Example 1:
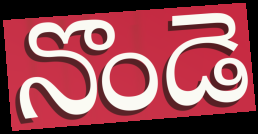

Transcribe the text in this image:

నొండె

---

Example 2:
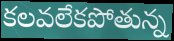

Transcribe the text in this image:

కలవలేకపోతున్న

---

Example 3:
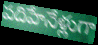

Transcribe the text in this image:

పదిహేనేళ్లుగా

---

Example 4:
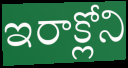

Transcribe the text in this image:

ఇరాక్లోని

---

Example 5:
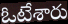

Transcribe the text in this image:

ఓటేశారు